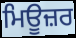
ਮਿਊਜ਼ਰ